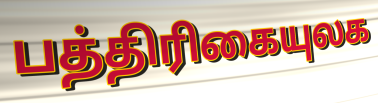
பத்திரிகையுலக